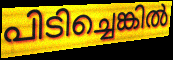
പിടിച്ചെങ്കിൽ